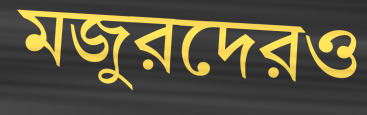
মজুরদেরও